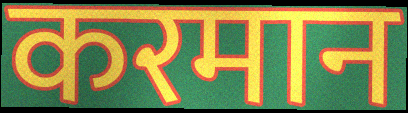
करमान